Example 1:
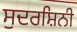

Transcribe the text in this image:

ਸੁਦਰਸ਼ਿਨੀ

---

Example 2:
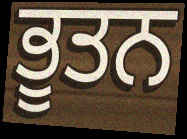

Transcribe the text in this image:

ਭੂਤਨ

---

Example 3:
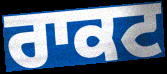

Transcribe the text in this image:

ਰਾਕਟ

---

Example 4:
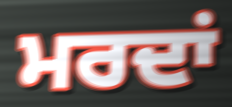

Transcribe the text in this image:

ਮਰਦਾਂ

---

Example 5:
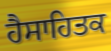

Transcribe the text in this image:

ਹੈਸਾਹਿਤਕ